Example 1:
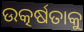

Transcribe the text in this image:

ଉତ୍କର୍ଷତାକୁ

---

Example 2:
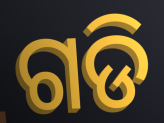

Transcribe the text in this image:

ଗଡି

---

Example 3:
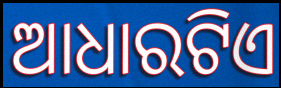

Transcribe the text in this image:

ଆଧାରଟିଏ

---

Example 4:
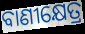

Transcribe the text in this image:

ବାଣୀକ୍ଷେତ୍ର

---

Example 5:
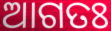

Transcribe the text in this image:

ଆଗତଃ